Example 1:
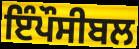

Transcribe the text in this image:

ਇੰਪੌਸੀਬਲ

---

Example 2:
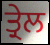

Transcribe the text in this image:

ਤ੍ਰੇਲ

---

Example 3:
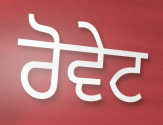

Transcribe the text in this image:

ਰੋਵੇਟ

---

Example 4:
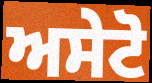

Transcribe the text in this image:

ਅਸੇਟੋ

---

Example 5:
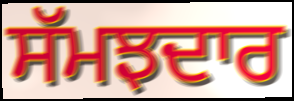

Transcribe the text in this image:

ਸੱਮਝਦਾਰ